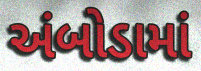
અંબોડામાં